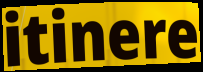
itinere